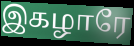
இகழாரே